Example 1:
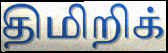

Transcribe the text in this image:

திமிறிக்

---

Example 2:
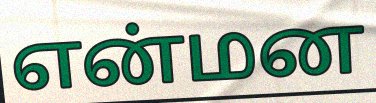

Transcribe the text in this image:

என்மன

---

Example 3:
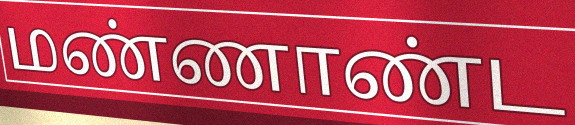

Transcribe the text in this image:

மண்ணாண்ட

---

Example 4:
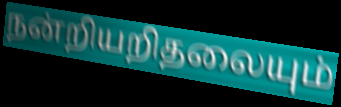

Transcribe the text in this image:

நன்றியறிதலையும்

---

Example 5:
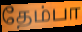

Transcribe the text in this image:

தேம்பா